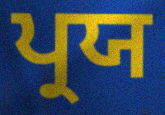
ਪ੍ਰਯ